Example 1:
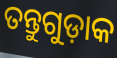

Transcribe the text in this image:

ତନ୍ତୁଗୁଡ଼ାକ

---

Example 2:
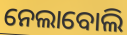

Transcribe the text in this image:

ନେଲାବୋଲି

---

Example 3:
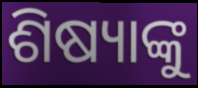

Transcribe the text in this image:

ଶିଷ୍ୟାଙ୍କୁ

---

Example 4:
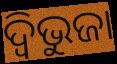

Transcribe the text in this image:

ଦ୍ଵିଭୁଜା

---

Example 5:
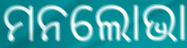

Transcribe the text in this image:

ମନଲୋଭା